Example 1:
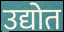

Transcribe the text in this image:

उद्योत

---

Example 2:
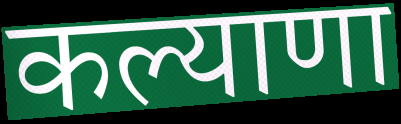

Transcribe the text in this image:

कल्याणा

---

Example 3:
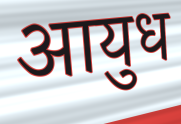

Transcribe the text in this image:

आयुध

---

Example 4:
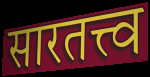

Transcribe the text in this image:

सारतत्त्व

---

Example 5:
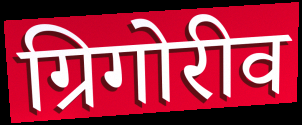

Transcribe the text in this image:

ग्रिगोरीव